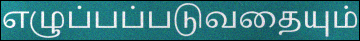
எழுப்பப்படுவதையும்